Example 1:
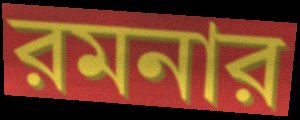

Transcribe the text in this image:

রমনার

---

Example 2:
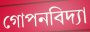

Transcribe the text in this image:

গোপনবিদ্যা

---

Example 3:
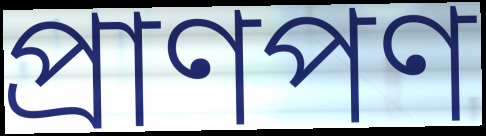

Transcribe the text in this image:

প্রাণপণ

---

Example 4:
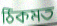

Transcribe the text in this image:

ঠিকমত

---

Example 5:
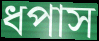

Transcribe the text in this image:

ধপাস